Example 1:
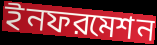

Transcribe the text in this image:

ইনফরমেশন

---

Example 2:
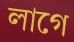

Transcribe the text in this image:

লাগে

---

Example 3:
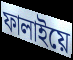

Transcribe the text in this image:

ফালাইয়ে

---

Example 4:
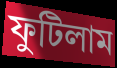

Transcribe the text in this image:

ফুটিলাম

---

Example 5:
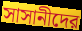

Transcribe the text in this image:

সাসানীদের